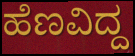
ಹೆಣವಿದ್ದ